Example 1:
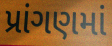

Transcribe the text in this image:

પ્રાંગણમાં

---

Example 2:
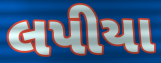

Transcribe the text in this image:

લપીયા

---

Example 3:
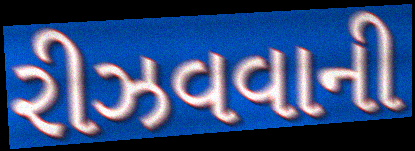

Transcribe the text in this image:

રીઝવવાની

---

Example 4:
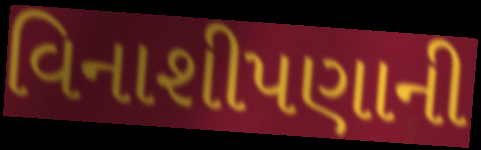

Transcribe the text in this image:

વિનાશીપણાની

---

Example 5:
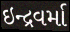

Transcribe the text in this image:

ઇન્દ્રવર્મા